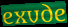
exude